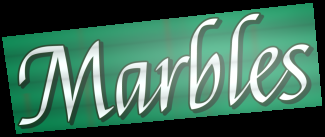
Marbles